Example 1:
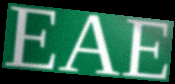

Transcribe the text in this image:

EAE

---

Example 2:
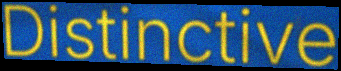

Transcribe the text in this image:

Distinctive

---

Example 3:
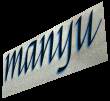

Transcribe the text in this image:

manyu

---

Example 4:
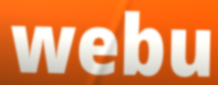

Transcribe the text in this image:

webu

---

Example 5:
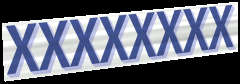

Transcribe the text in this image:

XXXXXXXX